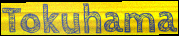
Tokuhama